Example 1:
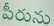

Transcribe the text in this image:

పీరును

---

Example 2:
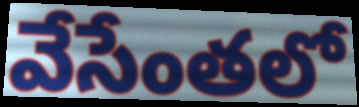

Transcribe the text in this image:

వేసేంతలో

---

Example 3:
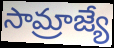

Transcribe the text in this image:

సామ్రాజ్యే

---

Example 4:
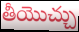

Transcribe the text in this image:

తీయొచ్చు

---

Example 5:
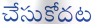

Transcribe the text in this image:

చేసుకోదట